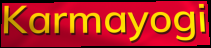
Karmayogi